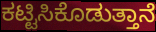
ಕಟ್ಟಿಸಿಕೊಡುತ್ತಾನೆ